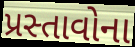
પ્રસ્તાવોના